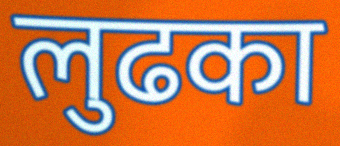
लुढका